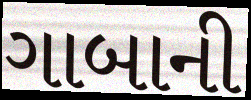
ગાબાની